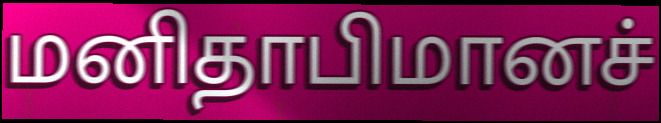
மனிதாபிமானச்